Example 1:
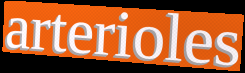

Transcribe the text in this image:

arterioles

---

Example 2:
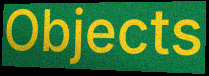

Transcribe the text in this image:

Objects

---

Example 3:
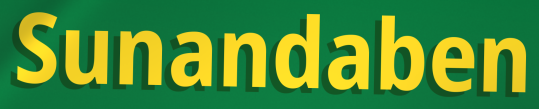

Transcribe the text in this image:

Sunandaben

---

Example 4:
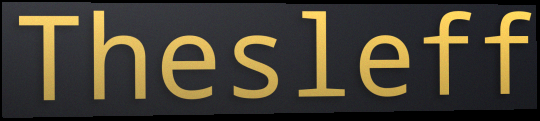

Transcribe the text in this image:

Thesleff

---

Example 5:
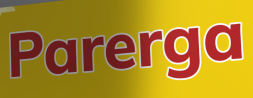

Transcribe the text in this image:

Parerga